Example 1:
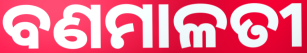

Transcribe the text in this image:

ବଣମାଳତୀ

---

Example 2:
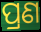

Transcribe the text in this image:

ପ୍ରଣ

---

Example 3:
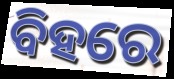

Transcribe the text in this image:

ବିହରେ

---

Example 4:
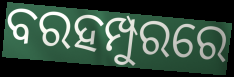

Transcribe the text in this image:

ବରହମ୍ପୁରରେ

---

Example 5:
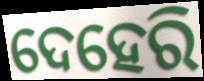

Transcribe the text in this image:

ଦେହେରି